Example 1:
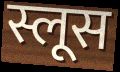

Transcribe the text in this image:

स्लूस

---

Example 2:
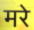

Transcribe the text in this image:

मरे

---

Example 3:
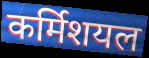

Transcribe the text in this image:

कर्मिशयल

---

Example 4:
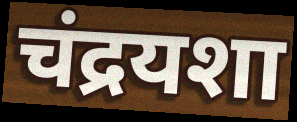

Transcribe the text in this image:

चंद्रयशा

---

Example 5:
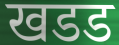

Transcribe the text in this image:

खडड